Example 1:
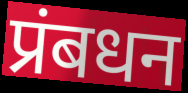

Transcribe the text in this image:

प्रंबधन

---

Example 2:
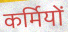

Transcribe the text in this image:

कर्मियों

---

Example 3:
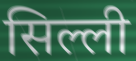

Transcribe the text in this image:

सिल्ली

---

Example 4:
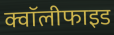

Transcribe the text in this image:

क्वॉलीफाइड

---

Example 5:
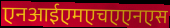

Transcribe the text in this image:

एनआईएमएचएएनएस